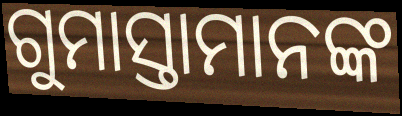
ଗୁମାସ୍ତାମାନଙ୍କ